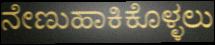
ನೇಣುಹಾಕಿಕೊಳ್ಳಲು